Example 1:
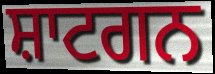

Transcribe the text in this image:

ਸ਼ਾਟਗਨ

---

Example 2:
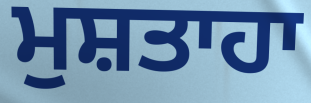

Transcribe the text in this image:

ਮੁਸ਼ਤਾਹਾ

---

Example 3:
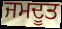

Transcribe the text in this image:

ਜਮਦੂਤ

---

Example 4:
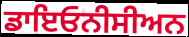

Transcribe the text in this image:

ਡਾਇਓਨੀਸੀਅਨ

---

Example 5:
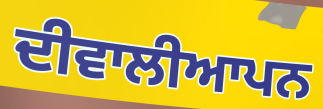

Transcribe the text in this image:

ਦੀਵਾਲੀਆਪਨ